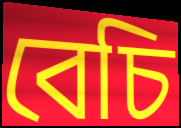
বেচি